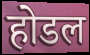
होडल